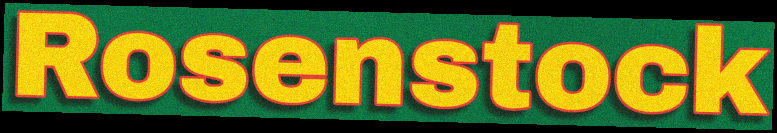
Rosenstock